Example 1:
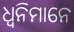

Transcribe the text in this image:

ଧ୍ୱନିମାନେ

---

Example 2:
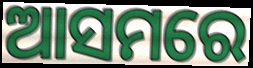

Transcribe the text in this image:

ଆସମରେ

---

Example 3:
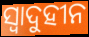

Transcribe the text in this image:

ସ୍ୱାଦୁହୀନ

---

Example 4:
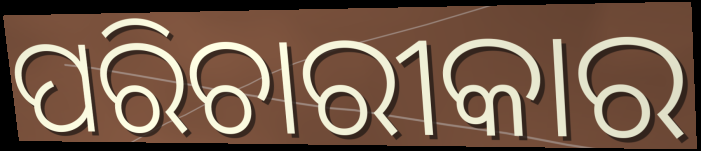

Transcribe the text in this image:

ପରିଚାରୀକାର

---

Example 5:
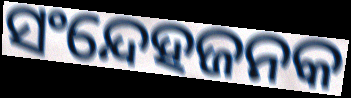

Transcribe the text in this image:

ସଂନ୍ଦେହଜନକ